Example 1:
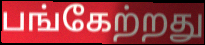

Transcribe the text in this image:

பங்கேற்றது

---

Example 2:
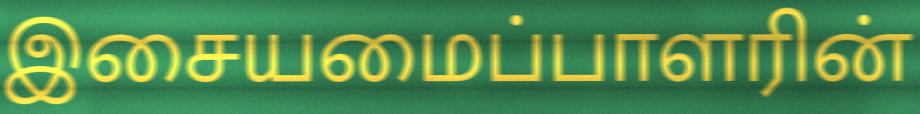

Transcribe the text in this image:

இசையமைப்பாளரின்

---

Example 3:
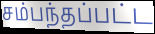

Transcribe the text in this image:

சம்பந்தப்பட்ட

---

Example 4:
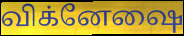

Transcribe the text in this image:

விக்னேஷை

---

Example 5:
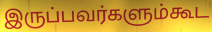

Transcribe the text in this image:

இருப்பவர்களும்கூட